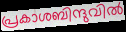
പ്രകാശബിന്ദുവിൽ